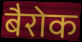
बैरोक